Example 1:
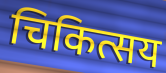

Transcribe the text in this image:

चिकित्सय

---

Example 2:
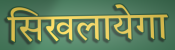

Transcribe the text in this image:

सिखलायेगा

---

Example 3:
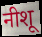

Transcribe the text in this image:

नीशू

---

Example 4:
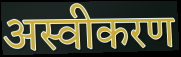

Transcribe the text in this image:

अस्वीकरण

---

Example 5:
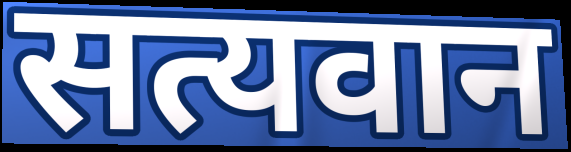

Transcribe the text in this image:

सत्यवान